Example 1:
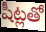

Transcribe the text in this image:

షీట్లతో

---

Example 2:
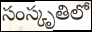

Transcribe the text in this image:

సంస్కృతిలో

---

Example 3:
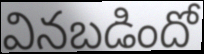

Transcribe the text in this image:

వినబడిందో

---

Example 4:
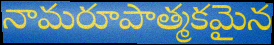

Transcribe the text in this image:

నామరూపాత్మకమైన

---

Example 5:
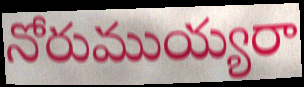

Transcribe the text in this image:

నోరుముయ్యరా